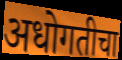
अधोगतीचा